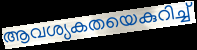
ആവശ്യകതയെകുറിച്ച്